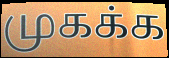
முகக்க